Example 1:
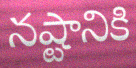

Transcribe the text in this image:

నష్టానికి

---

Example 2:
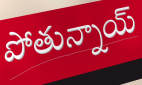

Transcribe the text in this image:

పోతున్నాయ్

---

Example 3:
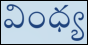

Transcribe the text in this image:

వింధ్య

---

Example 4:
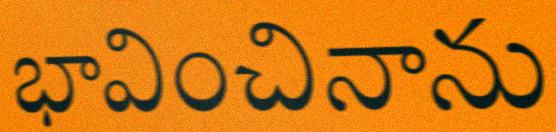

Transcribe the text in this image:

భావించినాను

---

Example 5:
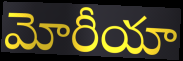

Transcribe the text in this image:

మోరీయా